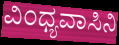
ವಿಂಧ್ಯವಾಸಿನಿ